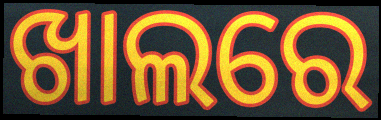
ଖାଲରେ